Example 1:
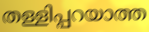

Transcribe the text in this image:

തള്ളിപ്പറയാത്ത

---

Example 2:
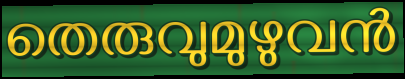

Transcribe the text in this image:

തെരുവുമുഴുവൻ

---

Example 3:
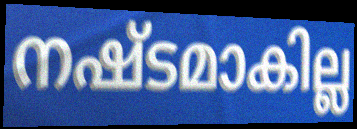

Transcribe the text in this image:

നഷ്ടമാകില്ല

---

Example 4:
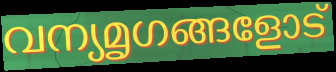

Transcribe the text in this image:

വന്യമൃഗങ്ങളോട്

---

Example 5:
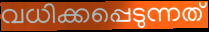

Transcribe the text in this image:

വധിക്കപ്പെടുന്നത്